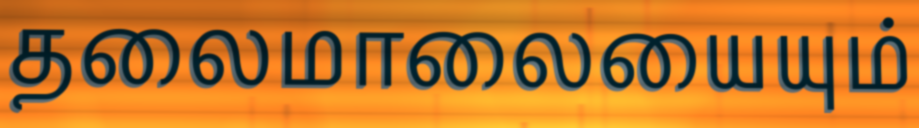
தலைமாலையையும்